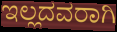
ಇಲ್ಲದವರಾಗಿ